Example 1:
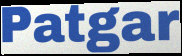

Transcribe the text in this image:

Patgar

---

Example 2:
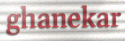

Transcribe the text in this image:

ghanekar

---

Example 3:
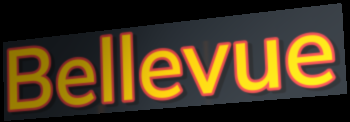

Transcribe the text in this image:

Bellevue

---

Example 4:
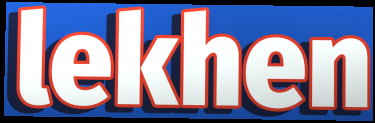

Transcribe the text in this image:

lekhen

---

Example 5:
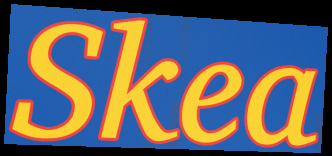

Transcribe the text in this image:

Skea